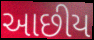
આછીય